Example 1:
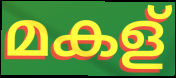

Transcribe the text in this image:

മകള്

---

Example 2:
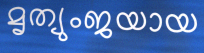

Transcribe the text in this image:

മൃത്യുംജയായ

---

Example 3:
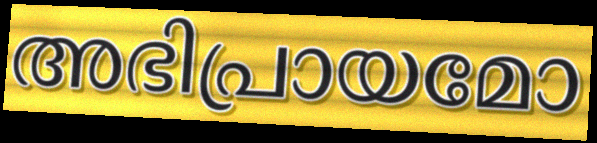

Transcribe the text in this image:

അഭിപ്രായമോ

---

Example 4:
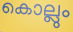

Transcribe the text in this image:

കൊല്ലും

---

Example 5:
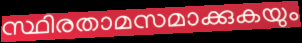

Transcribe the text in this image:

സ്ഥിരതാമസമാക്കുകയും